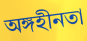
অঙ্গহীনতা